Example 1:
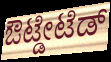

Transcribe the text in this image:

ಔಟ್ಡೇಟೆಡ್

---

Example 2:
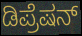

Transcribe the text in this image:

ಡಿಪ್ರೆಷನ್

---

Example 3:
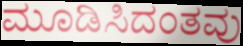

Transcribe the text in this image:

ಮೂಡಿಸಿದಂತವು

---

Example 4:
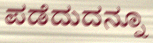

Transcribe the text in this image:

ಪಡೆದುದನ್ನೂ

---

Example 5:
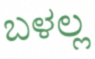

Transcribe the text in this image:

ಬಳಲ್ಲ